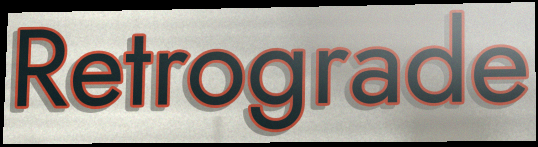
Retrograde